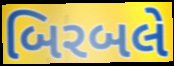
બિરબલે